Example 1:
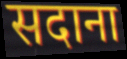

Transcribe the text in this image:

सदाना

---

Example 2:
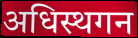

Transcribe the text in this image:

अधिस्थगन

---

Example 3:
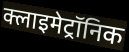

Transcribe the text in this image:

क्लाइमेट्रॉनिक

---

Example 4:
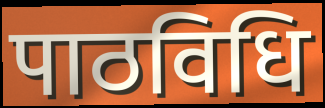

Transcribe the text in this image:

पाठविधि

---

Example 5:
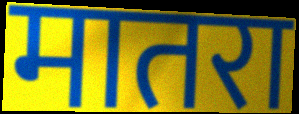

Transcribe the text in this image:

मातरा